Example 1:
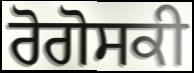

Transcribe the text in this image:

ਰੋਗੋਸਕੀ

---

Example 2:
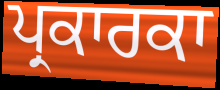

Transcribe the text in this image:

ਪ੍ਰਕਾਰਕਾ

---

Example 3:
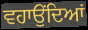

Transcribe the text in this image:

ਵਹਾਉਂਦਿਆਂ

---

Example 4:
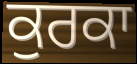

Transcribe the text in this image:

ਕੁਰਕਾ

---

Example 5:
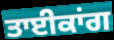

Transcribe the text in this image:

ਤਾਈਕਾਂਗ